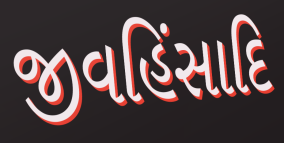
જીવહિંસાદિ